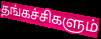
தங்கச்சிகளும்